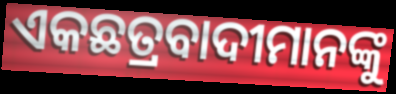
ଏକଛତ୍ରବାଦୀମାନଙ୍କୁ